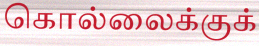
கொல்லைக்குக்